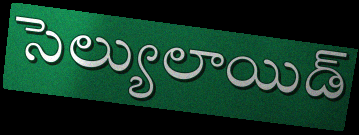
సెల్యులాయిడ్